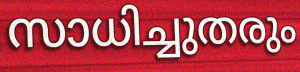
സാധിച്ചുതരും